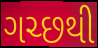
ગચ્છથી